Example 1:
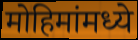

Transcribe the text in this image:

मोहिमांमध्ये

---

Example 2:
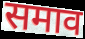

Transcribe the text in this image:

समाव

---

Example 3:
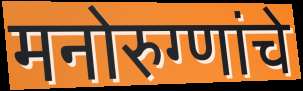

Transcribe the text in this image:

मनोरुग्णांचे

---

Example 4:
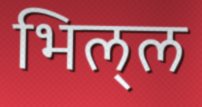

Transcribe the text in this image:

भिल्ल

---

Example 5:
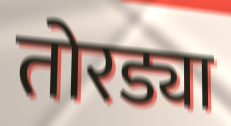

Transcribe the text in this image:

तोरड्या